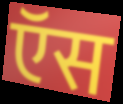
ऍस